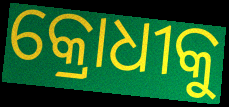
କ୍ରୋଧୀକୁ